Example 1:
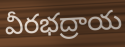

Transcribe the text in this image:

వీరభద్రాయ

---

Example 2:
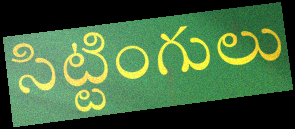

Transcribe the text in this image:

సిట్టింగులు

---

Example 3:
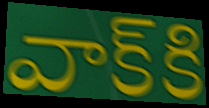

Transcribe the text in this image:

వాక్‌కి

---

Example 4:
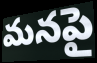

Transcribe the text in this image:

మనపై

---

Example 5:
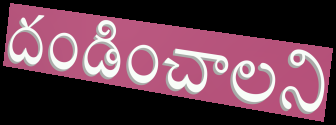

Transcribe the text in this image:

దండించాలని